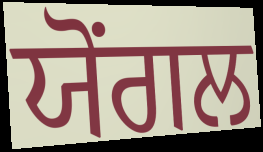
ਯੋਂਗਲ